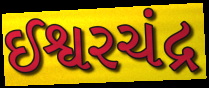
ઈશ્વરચંદ્ર